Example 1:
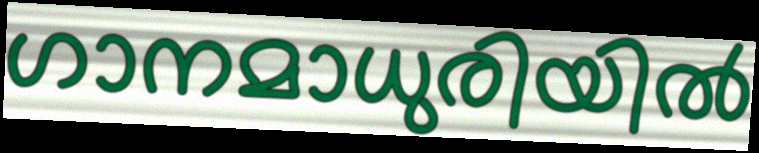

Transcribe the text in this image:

ഗാനമാധുരിയിൽ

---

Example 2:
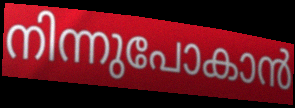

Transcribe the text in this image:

നിന്നുപോകാൻ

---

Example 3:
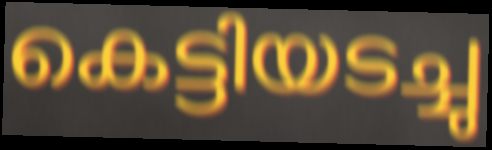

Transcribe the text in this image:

കെട്ടിയടച്ചു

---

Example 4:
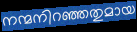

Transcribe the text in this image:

നന്മനിറഞ്ഞതുമായ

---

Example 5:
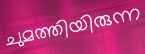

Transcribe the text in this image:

ചുമത്തിയിരുന്ന